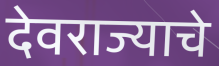
देवराज्याचे